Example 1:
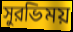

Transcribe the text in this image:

সুরভিময়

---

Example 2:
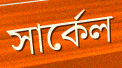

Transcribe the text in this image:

সার্কেল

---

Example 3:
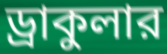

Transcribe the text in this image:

ড্রাকুলার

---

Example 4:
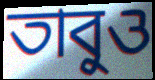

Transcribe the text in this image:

তাবুও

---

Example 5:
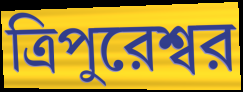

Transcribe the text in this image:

ত্রিপুরেশ্বর